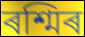
ৰশ্মিৰ